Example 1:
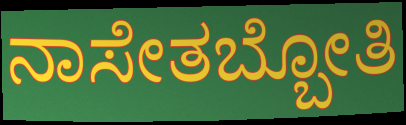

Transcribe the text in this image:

ನಾಸೇತಬ್ಬೋತಿ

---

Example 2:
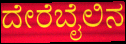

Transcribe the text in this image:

ದೇರೆಬೈಲಿನ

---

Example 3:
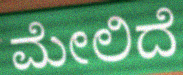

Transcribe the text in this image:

ಮೇಲಿದೆ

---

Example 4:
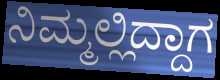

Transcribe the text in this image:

ನಿಮ್ಮಲ್ಲಿದ್ದಾಗ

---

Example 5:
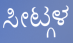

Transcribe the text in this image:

ಸೀಟ್ಗಳ